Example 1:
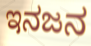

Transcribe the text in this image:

ಇನಜನ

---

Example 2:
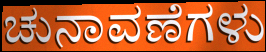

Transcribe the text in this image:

ಚುನಾವಣೆಗಳು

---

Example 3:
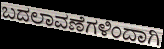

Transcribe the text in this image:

ಬದಲಾವಣೆಗಳಿಂದಾಗಿ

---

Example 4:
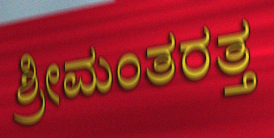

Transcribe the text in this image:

ಶ್ರೀಮಂತರತ್ತ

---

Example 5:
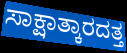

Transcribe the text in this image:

ಸಾಕ್ಷಾತ್ಕಾರದತ್ತ